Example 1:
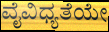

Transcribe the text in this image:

ವೈವಿಧ್ಯತೆಯೇ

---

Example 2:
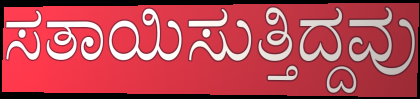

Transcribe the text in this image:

ಸತಾಯಿಸುತ್ತಿದ್ದವು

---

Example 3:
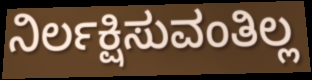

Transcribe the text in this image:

ನಿರ್ಲಕ್ಷಿಸುವಂತಿಲ್ಲ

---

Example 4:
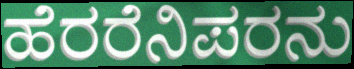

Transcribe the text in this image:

ಹೆರರೆನಿಪರನು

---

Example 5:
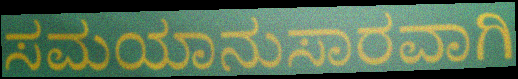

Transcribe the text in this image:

ಸಮಯಾನುಸಾರವಾಗಿ